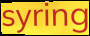
syring